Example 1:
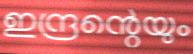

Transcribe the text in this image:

ഇന്ദ്രന്റെയും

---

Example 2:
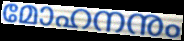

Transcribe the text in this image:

മോഹനനും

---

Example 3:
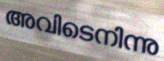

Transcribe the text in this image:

അവിടെനിന്നു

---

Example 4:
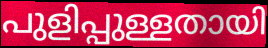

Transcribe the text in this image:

പുളിപ്പുള്ളതായി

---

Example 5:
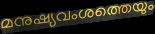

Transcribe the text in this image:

മനുഷ്യവംശത്തെയും